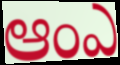
ఆంఎ